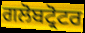
ਗਲੋਬਟ੍ਰੋਟਰ